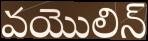
వయొలిన్